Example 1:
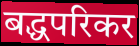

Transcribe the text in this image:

बद्धपरिकर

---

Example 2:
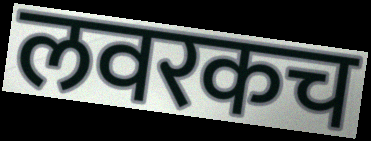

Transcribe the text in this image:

लवरकच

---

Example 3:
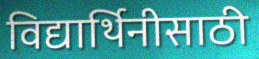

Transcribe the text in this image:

विद्यार्थिनीसाठी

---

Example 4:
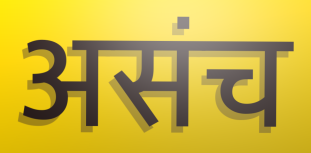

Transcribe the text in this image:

असंच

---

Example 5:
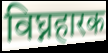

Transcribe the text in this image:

विघ्नहारक